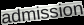
admission